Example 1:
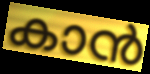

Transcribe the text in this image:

കാൻ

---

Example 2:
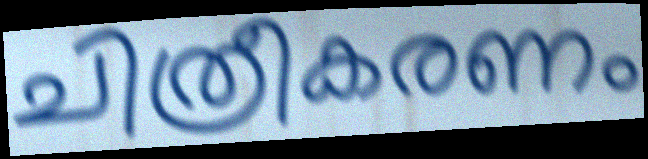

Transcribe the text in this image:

ചിത്രീകരണം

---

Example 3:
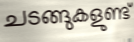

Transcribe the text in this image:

ചടങ്ങുകളുണ്ട്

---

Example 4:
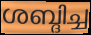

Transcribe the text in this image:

ശബ്ദിച്ച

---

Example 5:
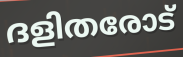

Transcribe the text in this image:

ദളിതരോട്